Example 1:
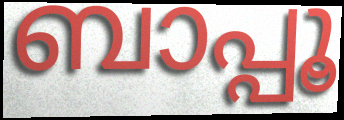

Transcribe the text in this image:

ബാപ്പൂ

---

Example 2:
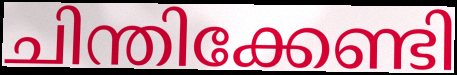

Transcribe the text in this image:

ചിന്തിക്കേണ്ടി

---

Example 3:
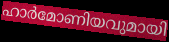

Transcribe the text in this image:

ഹാർമോണിയവുമായി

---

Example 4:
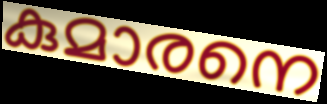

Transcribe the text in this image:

കുമാരനെ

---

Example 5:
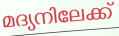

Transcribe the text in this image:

മദ്യനിലേക്ക്